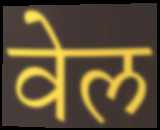
वेल